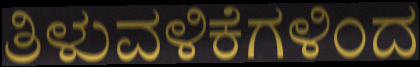
ತಿಳುವಳಿಕೆಗಳಿಂದ